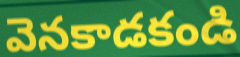
వెనకాడకండి